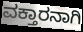
ವಕ್ತಾರನಾಗಿ